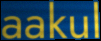
aakul